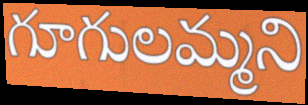
గూగులమ్మని